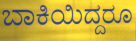
ಬಾಕಿಯಿದ್ದರೂ